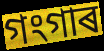
গংগাৰ